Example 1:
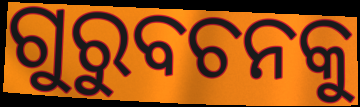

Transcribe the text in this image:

ଗୁରୁବଚନକୁ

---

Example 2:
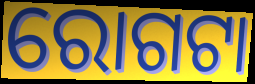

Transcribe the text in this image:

ରୋଗଟା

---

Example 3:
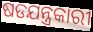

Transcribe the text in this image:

ଷଡଯନ୍ତ୍ରକାରୀ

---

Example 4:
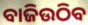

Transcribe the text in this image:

ବାଜିଉଠିବ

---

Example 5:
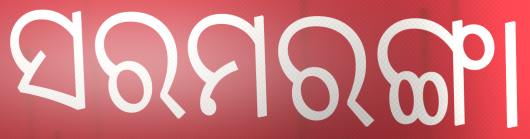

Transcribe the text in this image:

ସରମରଙ୍ଗା